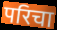
परिचा